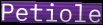
Petiole